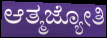
ಆತ್ಮಜ್ಯೋತಿ